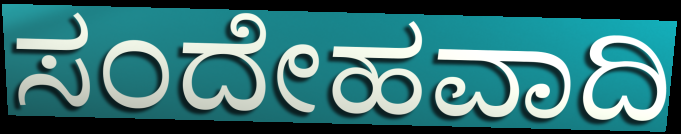
ಸಂದೇಹವಾದಿ